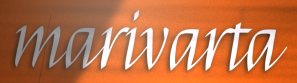
marivarta